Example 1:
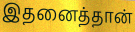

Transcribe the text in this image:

இதனைத்தான்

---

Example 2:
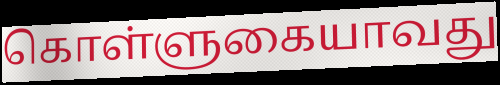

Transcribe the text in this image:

கொள்ளுகையாவது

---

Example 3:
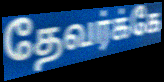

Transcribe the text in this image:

தேவர்க்கே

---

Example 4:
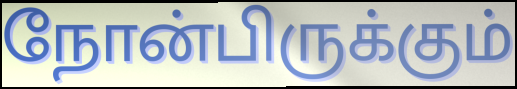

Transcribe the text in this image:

நோன்பிருக்கும்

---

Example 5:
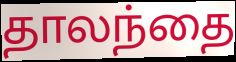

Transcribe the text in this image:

தாலந்தை